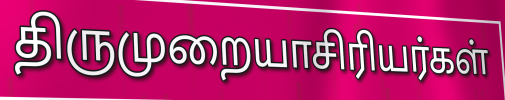
திருமுறையாசிரியர்கள்